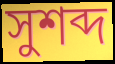
সুশব্দ